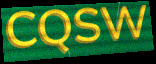
CQSW